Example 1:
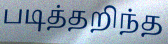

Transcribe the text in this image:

படித்தறிந்த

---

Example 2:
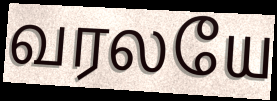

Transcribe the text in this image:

வரலயே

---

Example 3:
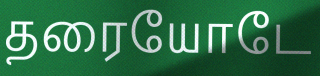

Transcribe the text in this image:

தரையோடே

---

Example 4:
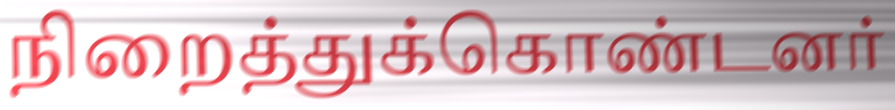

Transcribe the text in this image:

நிறைத்துக்கொண்டனர்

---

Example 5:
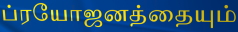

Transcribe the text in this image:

ப்ரயோஜனத்தையும்